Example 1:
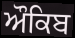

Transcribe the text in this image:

ਔਕਿਬ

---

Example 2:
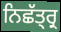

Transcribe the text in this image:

ਨਿਛੱਤ੍ਰ੍ਰ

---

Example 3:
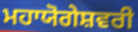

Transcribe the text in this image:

ਮਹਾਯੋਗੇਸ਼ਵਰੀ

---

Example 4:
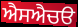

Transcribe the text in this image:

ਐਸਐਚੳ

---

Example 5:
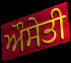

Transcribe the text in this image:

ਔਸੇਤੀ